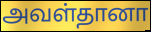
அவள்தானா